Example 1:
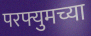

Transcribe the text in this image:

परफ्युमच्या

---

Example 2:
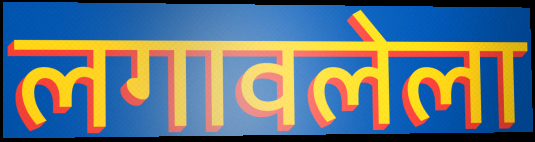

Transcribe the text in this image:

लगावलेला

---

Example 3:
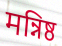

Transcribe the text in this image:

मन्निष्ठ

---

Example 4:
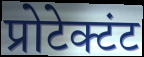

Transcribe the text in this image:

प्रोटेक्टंट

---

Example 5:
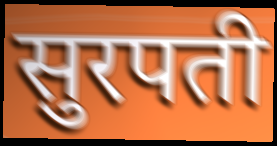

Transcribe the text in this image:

सुरपती